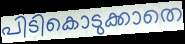
പിടികൊടുക്കാതെ